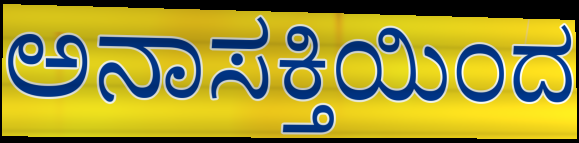
ಅನಾಸಕ್ತಿಯಿಂದ